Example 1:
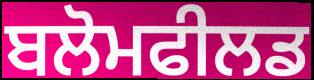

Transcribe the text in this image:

ਬਲੋਮਫੀਲਡ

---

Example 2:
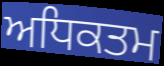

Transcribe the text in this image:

ਅਧਿਕਤਮ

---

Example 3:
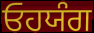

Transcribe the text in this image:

ਓਹਯੰਗ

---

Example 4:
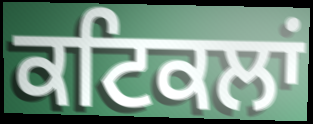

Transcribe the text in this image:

ਕਟਿਕਲਾਂ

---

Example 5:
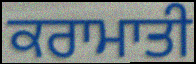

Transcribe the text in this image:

ਕਰਾਮਾਤੀ